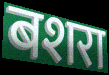
बशरा